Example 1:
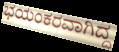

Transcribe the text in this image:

ಭಯಂಕರವಾಗಿದ್ದ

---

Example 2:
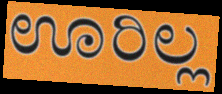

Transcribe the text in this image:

ಊರಿಲ್ಲ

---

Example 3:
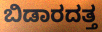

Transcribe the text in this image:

ಬಿಡಾರದತ್ತ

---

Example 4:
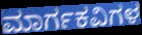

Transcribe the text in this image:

ಮಾರ್ಗಕವಿಗಳ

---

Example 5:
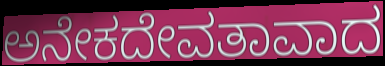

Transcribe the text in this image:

ಅನೇಕದೇವತಾವಾದ